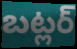
బట్లర్